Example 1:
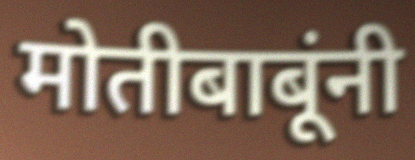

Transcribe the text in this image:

मोतीबाबूंनी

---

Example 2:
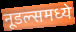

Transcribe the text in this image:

नूडल्समध्ये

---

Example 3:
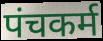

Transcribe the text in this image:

पंचकर्म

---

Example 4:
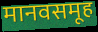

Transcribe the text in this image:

मानवसमूह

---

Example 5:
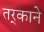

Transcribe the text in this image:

तर्काने